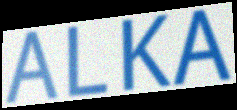
ALKA